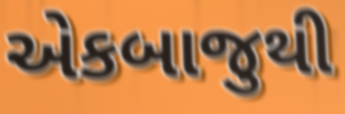
એકબાજુથી